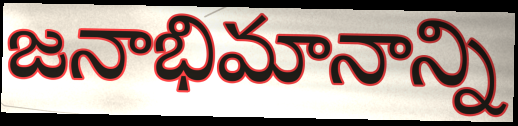
జనాభిమానాన్ని